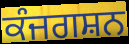
ਕੰਜਗਸ਼ਨ